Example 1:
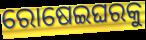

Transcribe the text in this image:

ରୋଷେଇଘରକୁ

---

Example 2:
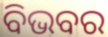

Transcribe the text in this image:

ବିଭବର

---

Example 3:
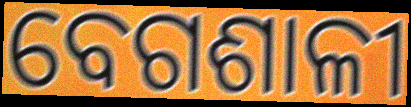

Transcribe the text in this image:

ବେଗଶାଳୀ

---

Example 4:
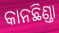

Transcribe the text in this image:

କାନଛିଣ୍ଡା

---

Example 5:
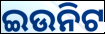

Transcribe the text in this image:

ଇଉନିଟ